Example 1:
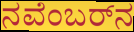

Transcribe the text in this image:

ನವೆಂಬರ್‌ನ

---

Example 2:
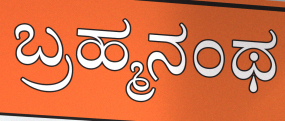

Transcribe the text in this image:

ಬ್ರಹ್ಮನಂಥ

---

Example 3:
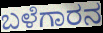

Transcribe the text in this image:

ಬಳೆಗಾರನ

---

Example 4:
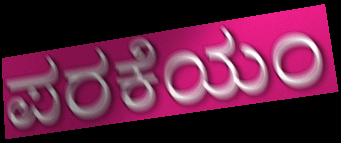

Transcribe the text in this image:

ಪರಕೆಯಂ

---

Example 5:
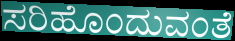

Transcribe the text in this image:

ಸರಿಹೊಂದುವಂತೆ